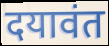
दयावंत